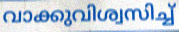
വാക്കുവിശ്വസിച്ച്